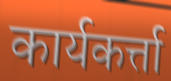
कार्यकर्त्ता